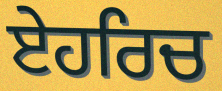
ਏਹਰਿਚ